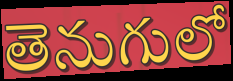
తెనుగులో